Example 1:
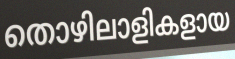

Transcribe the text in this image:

തൊഴിലാളികളായ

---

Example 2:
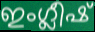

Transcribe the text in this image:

ഇംഗ്ലീഷ്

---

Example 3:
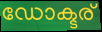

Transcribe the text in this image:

ഡോക്ടര്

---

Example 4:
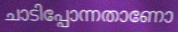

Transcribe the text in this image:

ചാടിപ്പോന്നതാണോ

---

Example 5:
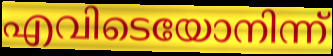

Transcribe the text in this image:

എവിടെയോനിന്ന്